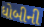
ધોબીની